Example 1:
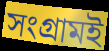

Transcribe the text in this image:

সংগ্রামই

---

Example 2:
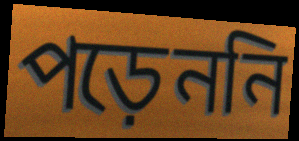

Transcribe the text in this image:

পড়েননি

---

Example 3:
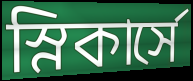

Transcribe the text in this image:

স্নিকার্সে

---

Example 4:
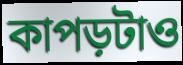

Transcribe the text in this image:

কাপড়টাও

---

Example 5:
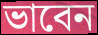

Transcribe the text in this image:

ভাবেন